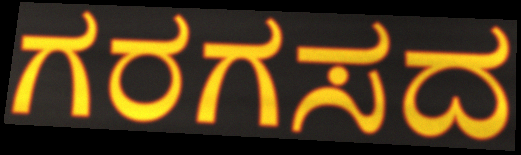
ಗರಗಸದ